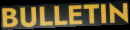
BULLETIN